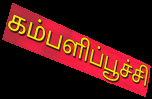
கம்பளிப்பூச்சி